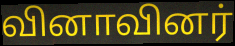
வினாவினர்